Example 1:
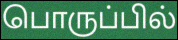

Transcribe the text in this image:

பொருப்பில்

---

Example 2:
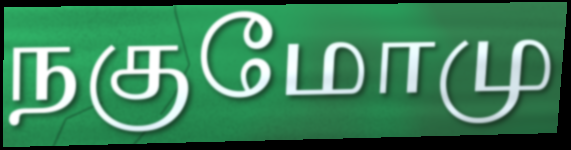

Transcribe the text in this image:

நகுமோமு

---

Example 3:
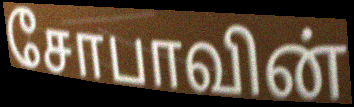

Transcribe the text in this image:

சோபாவின்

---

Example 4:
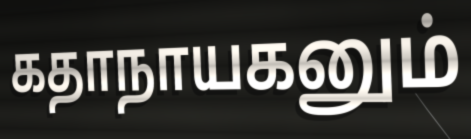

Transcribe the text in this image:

கதாநாயகனும்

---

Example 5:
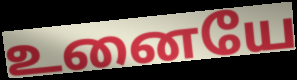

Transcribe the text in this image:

உனையே